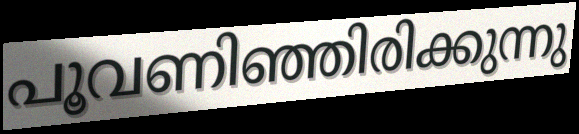
പൂവണിഞ്ഞിരിക്കുന്നു